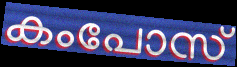
കംപോസ്